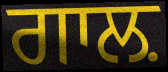
ਗਾਲ਼